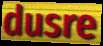
dusre